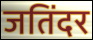
जतिंदर